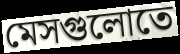
মেসগুলোতে